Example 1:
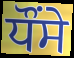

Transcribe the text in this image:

ਧੌਂਸੇ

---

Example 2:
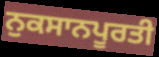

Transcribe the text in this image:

ਨੁਕਸਾਨਪੂਰਤੀ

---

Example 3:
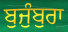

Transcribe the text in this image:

ਬੁਜੁੰਬੁਰਾ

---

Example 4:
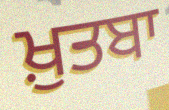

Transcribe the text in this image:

ਖ਼ੁਤਬਾ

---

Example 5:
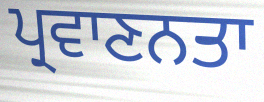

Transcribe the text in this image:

ਪ੍ਰਵਾਣਨਤਾ